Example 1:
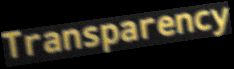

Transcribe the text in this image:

Transparency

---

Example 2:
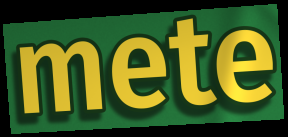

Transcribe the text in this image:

mete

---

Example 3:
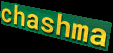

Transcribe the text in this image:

chashma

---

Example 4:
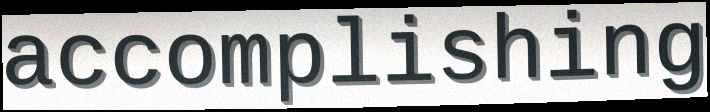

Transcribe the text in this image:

accomplishing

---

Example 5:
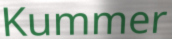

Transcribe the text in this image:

Kummer